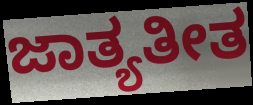
ಜಾತ್ಯತೀತ